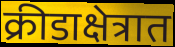
क्रीडाक्षेत्रात